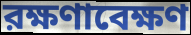
রক্ষণাবেক্ষণ